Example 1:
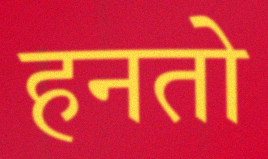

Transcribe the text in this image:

हनतो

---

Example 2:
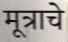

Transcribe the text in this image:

मूत्राचे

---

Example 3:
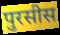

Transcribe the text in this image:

पुरसीस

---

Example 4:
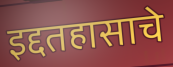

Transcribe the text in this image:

इद्दतहासाचे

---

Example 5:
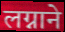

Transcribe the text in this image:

लग्नाने